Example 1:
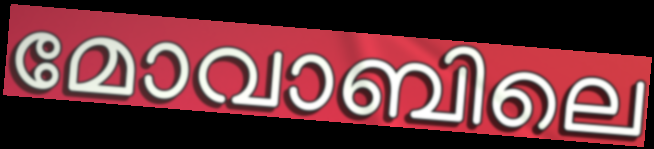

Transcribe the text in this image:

മോവാബിലെ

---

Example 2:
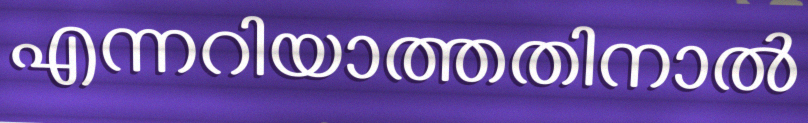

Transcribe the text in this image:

എന്നറിയാത്തതിനാൽ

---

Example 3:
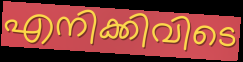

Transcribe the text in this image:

എനിക്കിവിടെ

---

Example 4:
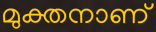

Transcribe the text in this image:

മുക്തനാണ്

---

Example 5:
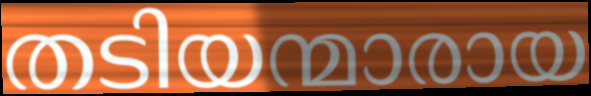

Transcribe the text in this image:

തടിയന്മാരായ